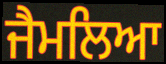
ਜੈਮਲਿਆ